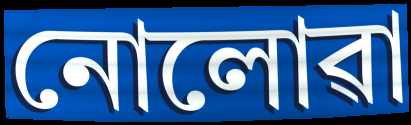
নোলোৱা